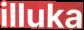
illuka